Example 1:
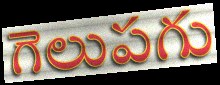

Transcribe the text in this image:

గెలుపగు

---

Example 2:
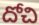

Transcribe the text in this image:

దోచి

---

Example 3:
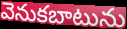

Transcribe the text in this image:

వెనుకబాటును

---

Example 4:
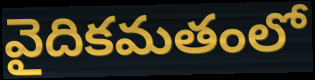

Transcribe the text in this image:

వైదికమతంలో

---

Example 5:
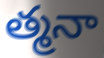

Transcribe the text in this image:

త్మనా